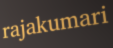
rajakumari